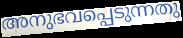
അനുഭവപ്പെടുന്നതു